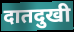
दातदुखी